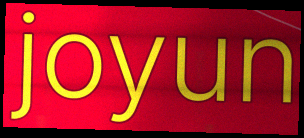
joyun